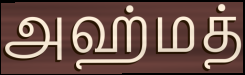
அஹ்மத்